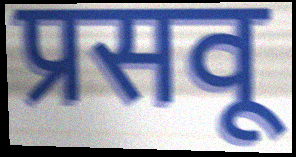
प्रसवू